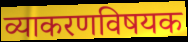
व्याकरणविषयक